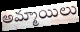
అమ్మాయిలు